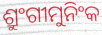
ଶ୍ରୁଂଗୀମୁନିଂକ